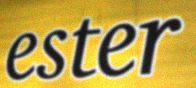
ester